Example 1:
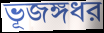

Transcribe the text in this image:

ভূজঙ্গধর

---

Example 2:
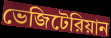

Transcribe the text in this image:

ভেজিটেরিয়ান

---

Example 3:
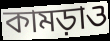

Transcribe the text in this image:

কামড়াও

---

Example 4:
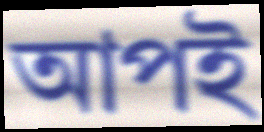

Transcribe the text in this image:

আপই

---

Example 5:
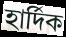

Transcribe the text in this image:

হার্দিক